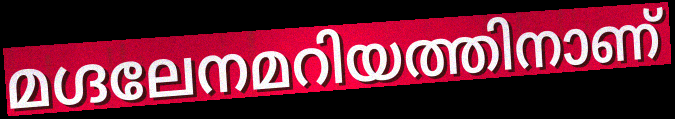
മഗ്ദലേനമറിയത്തിനാണ്